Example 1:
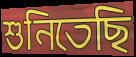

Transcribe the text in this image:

শুনিতেছি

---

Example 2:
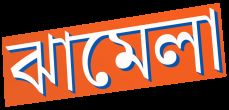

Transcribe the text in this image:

ঝামেলা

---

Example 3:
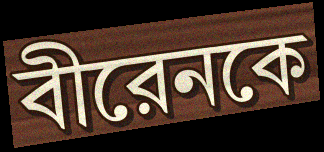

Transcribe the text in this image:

বীরেনকে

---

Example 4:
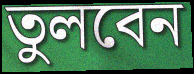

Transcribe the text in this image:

তুলবেন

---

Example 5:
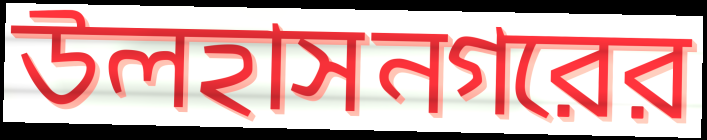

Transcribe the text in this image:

উলহাসনগরের